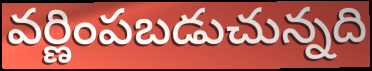
వర్ణింపబడుచున్నది